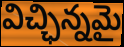
విచ్ఛిన్నమై